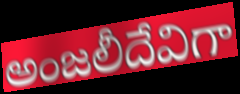
అంజలీదేవిగా